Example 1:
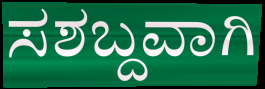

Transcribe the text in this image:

ಸಶಬ್ದವಾಗಿ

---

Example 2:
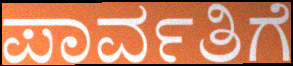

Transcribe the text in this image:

ಪಾರ್ವತಿಗೆ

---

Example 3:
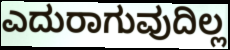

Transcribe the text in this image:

ಎದುರಾಗುವುದಿಲ್ಲ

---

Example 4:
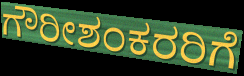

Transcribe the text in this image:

ಗೌರೀಶಂಕರರಿಗೆ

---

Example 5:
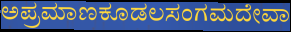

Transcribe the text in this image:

ಅಪ್ರಮಾಣಕೂಡಲಸಂಗಮದೇವಾ